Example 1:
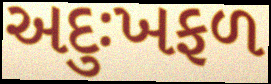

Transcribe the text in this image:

અદુઃખફળ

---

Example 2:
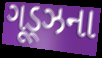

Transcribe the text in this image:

ગૂડ્ઝના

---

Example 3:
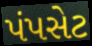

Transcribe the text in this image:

પંપસેટ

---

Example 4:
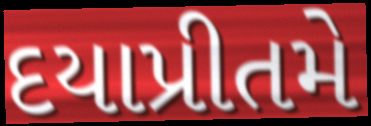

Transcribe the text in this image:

દયાપ્રીતમે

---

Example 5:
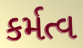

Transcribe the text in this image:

કર્મત્વ